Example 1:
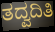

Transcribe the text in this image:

ತದ್ವದಿತಿ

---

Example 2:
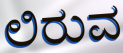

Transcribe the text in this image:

ಲಿರುವ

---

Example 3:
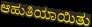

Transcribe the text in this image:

ಆಹುತಿಯಾಯಿತು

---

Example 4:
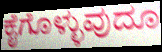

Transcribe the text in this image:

ಕೈಗೊಳ್ಳುವುದೂ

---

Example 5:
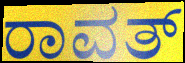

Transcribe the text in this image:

ರಾವತ್